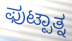
ಫುಟ್ಪಾತ್ನ